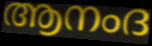
ആനംദ